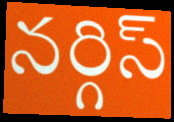
నర్గిస్